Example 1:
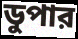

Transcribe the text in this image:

ডুপার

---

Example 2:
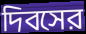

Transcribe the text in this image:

দিবসের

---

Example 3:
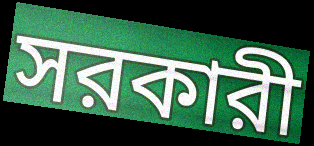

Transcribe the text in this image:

সরকারী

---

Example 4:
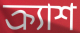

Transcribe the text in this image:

ক্র্যাশ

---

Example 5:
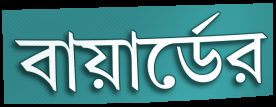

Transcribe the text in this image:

বায়ার্ডের